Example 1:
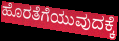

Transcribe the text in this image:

ಹೊರತೆಗೆಯುವುದಕ್ಕೆ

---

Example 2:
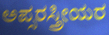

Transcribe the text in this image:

ಅಪ್ಸರಸ್ತ್ರೀಯರ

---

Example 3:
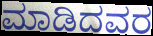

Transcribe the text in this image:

ಮಾಡಿದವರ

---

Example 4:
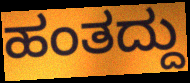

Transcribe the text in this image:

ಹಂತದ್ದು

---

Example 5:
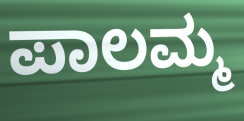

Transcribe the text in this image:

ಪಾಲಮ್ಮ